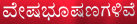
ವೇಷಭೂಷಣಗಳಿವೆ